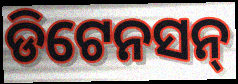
ଡିଟେନସନ୍